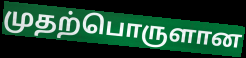
முதற்பொருளான